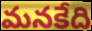
మనకేది